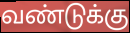
வண்டுக்கு